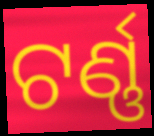
ଟର୍ଣ୍ଣ